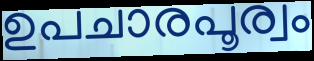
ഉപചാരപൂര്വം